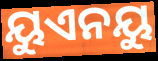
ୟୁଏନୟୁ